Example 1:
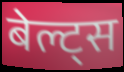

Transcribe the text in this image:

बेल्ट्स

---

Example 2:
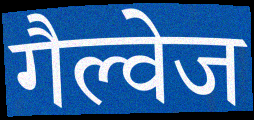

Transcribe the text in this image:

गैल्वेज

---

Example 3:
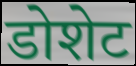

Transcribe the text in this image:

डोशेट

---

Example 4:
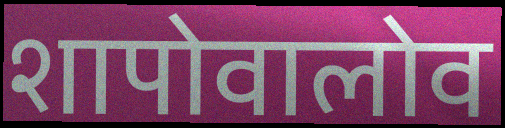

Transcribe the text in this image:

शापोवालोव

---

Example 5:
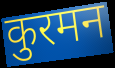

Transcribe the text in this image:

कुरमन